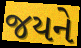
જયને